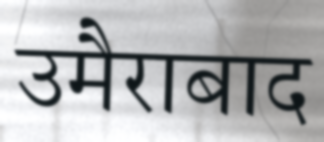
उमैराबाद